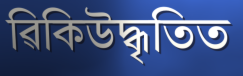
ৱিকিউদ্ধৃতিত